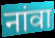
नांवा